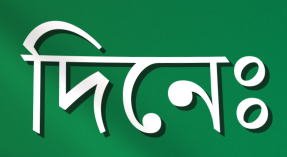
দিনেঃ